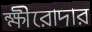
ক্ষীরোদার